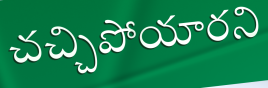
చచ్చిపోయారని